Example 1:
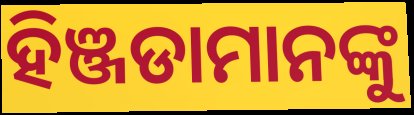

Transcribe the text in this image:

ହିଞ୍ଜଡାମାନଙ୍କୁ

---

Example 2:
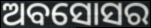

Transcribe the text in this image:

ଅବସୋସର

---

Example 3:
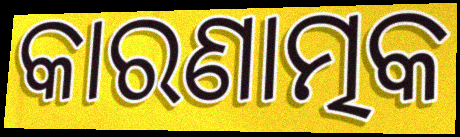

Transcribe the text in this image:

କାରଣାତ୍ମକ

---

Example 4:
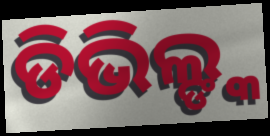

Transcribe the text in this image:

ଡିଭିଲ୍ଙ୍କ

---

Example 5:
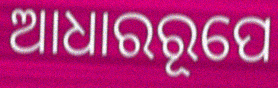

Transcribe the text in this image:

ଆଧାରରୂପେ